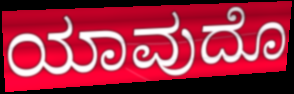
ಯಾವುದೊ